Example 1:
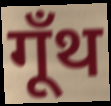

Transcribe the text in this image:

गूँथ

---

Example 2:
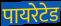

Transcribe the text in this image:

पायरेटेड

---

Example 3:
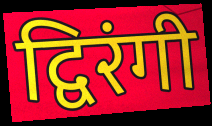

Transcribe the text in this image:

द्विरंगी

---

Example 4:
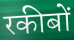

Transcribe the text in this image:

रकीबों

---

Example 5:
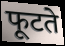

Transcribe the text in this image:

फूटते